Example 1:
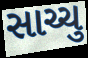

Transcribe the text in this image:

સાચ્ચુ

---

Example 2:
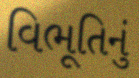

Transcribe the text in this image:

વિભૂતિનું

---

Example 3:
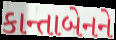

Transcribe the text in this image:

કાન્તાબેનને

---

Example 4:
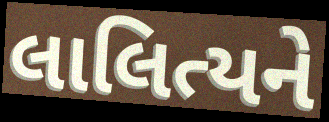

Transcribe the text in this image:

લાલિત્યને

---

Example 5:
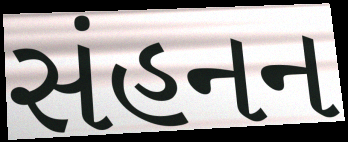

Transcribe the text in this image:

સંહનન